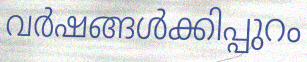
വർഷങ്ങൾക്കിപ്പുറം